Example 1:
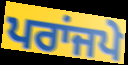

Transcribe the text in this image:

ਪਰਾਂਜਪੇ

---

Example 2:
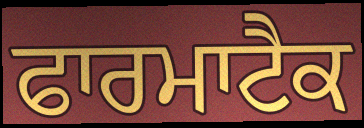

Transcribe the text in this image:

ਫਾਰਮਾਟੈਕ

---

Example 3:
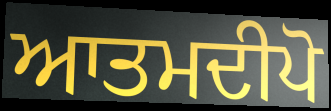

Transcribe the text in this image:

ਆਤਮਦੀਪੋ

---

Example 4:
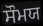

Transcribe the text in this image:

ਸੌਮਯ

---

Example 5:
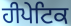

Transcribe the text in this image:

ਹੀਪੇਟਿਕ